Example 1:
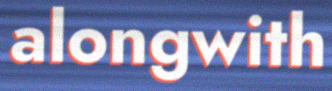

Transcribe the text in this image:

alongwith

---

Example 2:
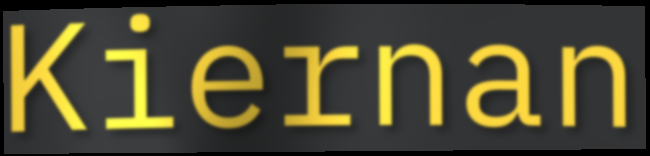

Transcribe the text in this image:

Kiernan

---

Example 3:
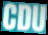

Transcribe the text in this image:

CDU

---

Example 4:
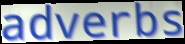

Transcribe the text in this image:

adverbs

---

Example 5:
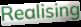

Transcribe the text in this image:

Realising